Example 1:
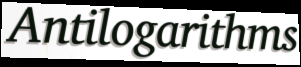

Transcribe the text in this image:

Antilogarithms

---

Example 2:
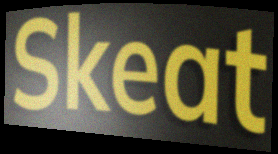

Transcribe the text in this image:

Skeat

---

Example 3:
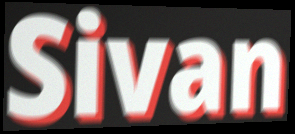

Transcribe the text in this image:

Sivan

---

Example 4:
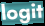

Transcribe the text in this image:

logit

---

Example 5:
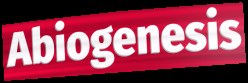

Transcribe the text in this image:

Abiogenesis